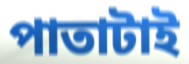
পাতাটাই